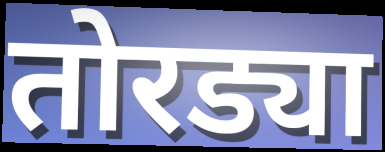
तोरड्या